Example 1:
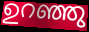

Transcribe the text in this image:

ഉറഞ്ഞു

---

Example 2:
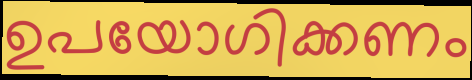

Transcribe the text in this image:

ഉപയോഗിക്കണം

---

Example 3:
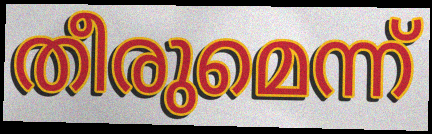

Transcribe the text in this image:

തീരുമെന്ന്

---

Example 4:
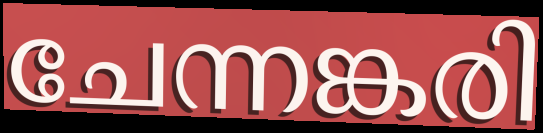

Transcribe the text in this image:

ചേന്നങ്കരി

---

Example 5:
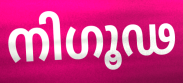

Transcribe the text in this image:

നിഗൂഢ